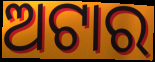
ଅଟାର